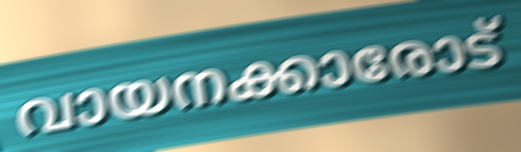
വായനക്കാരോട്